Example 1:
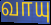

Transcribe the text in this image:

வாயு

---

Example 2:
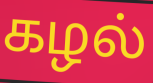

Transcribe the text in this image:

கழல்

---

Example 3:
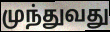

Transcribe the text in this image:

முந்துவது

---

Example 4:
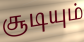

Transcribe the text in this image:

சூடியும்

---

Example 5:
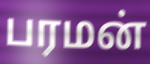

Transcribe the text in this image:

பரமன்